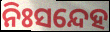
ନିଃସନ୍ଦେହ